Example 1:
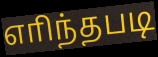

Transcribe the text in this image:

எரிந்தபடி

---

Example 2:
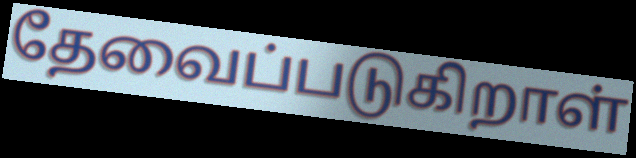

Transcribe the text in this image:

தேவைப்படுகிறாள்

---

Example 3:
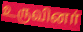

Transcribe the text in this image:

உருவினர்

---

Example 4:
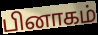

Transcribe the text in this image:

பினாகம்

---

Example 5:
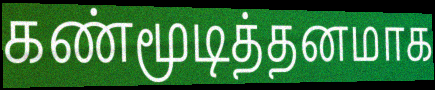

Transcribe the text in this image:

கண்மூடித்தனமாக